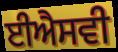
ਈਐਸਵੀ